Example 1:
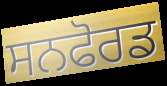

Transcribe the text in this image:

ਸਨਫੋਰਡ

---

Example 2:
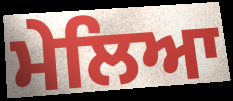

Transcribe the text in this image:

ਮੇਲਿਆ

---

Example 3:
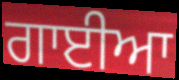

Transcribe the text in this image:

ਗਾਈਆ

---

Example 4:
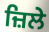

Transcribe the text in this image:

ਜ਼ਿਲੇ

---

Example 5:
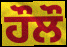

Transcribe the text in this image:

ਹੌਲੌ